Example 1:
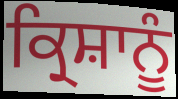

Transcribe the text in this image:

ਕ੍ਰਿਸ਼ਾਨੂੰ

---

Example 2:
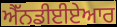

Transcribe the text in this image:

ਐੱਨਡੀਈਏਆਰ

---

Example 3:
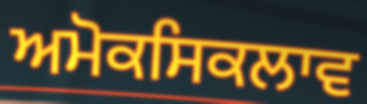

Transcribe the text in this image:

ਅਮੋਕਸਿਕਲਾਵ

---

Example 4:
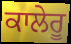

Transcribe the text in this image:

ਕਾਲੇਰੂ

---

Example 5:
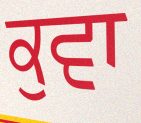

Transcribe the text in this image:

ਕੁਵਾ